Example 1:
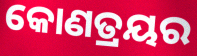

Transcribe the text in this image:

କୋଣତ୍ରୟର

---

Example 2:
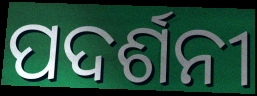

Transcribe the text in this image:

ପଦର୍ଶନୀ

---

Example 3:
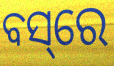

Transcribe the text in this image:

ବସ୍‌ରେ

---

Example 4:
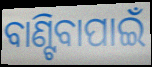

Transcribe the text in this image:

ବାଣ୍ଟିବାପାଇଁ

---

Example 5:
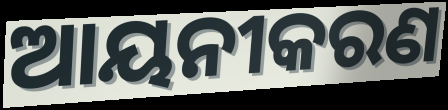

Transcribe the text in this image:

ଆୟନୀକରଣ